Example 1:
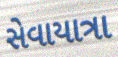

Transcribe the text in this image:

સેવાયાત્રા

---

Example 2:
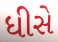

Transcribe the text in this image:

ધીસે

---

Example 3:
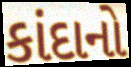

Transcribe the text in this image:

કાંદાનો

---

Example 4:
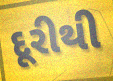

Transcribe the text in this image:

દૂરીથી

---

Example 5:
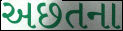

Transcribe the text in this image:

અછતના